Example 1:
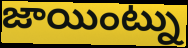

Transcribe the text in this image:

జాయింట్ను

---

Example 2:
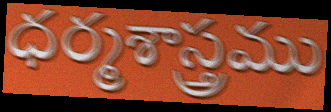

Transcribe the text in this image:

ధర్మశాస్త్రము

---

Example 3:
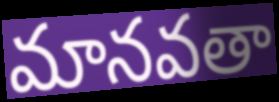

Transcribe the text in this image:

మానవతా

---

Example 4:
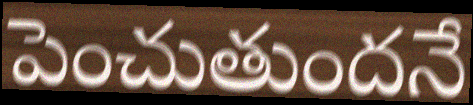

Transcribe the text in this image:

పెంచుతుందనే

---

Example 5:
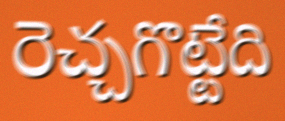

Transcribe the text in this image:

రెచ్చగొట్టేది